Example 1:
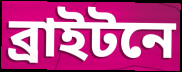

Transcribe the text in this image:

ব্রাইটনে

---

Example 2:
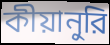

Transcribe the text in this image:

কীয়ানুরি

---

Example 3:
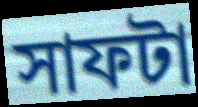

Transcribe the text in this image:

সাফটা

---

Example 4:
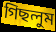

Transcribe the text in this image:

গিছলুম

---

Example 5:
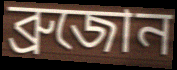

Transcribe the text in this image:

ব্রুজোন